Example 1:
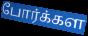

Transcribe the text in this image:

போர்க்கள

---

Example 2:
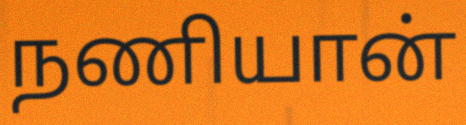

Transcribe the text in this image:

நணியான்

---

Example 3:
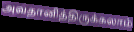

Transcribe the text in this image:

அவதானித்திருக்கலாம்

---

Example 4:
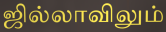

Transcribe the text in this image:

ஜில்லாவிலும்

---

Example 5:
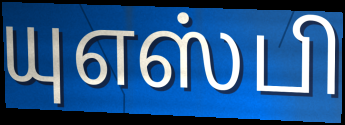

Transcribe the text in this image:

யுஎஸ்பி